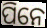
ପିନେ